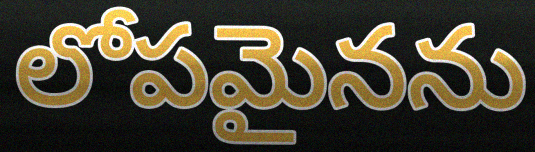
లోపమైనను